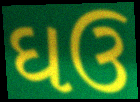
ઘઉ